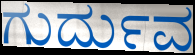
ಗುರ್ದುವ